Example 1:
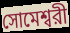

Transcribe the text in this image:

সোমেশ্বরী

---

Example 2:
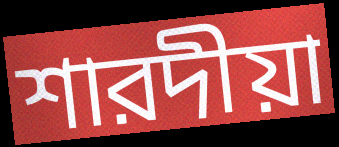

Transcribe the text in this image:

শারদীয়া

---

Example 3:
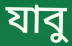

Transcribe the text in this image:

যাবু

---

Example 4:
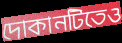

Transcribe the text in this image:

দোকানটিতেও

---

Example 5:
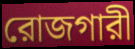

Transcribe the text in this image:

রোজগারী